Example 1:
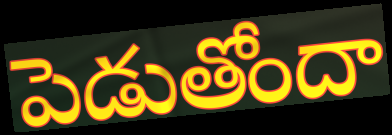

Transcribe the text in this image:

పెడుతోందా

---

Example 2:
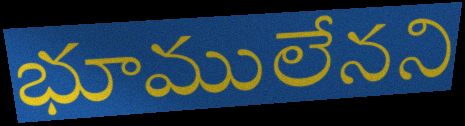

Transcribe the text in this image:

భూములేనని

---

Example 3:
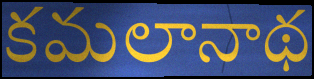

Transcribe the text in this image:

కమలానాథ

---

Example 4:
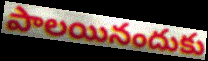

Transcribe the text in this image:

పాలయినందుకు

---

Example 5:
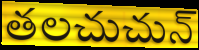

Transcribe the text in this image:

తలచుచున్